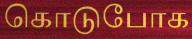
கொடுபோக